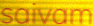
saivam